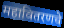
महावितरणचे